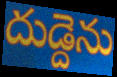
దుడ్దెను